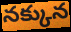
నక్కున